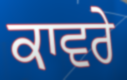
ਕਾਵਰੇ